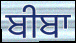
ਬੀਬਾ